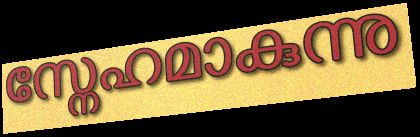
സ്നേഹമാകുന്നു